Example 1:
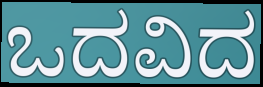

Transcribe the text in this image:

ಒದವಿದ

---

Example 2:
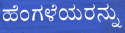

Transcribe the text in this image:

ಹೆಂಗಳೆಯರನ್ನು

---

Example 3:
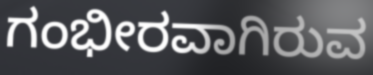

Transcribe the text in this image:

ಗಂಭೀರವಾಗಿರುವ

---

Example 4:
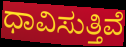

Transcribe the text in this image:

ಧಾವಿಸುತ್ತಿವೆ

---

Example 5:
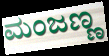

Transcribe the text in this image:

ಮಂಜಣ್ಣ